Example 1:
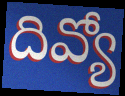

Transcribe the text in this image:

దివ్యో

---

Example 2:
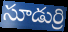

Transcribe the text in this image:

సూడుర్రి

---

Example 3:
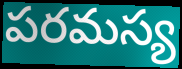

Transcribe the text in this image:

పరమస్య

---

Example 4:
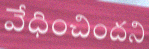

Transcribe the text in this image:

వేధించిందని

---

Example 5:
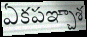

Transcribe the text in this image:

ఏకపఞ్చాశ